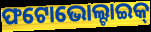
ଫଟୋଭୋଲ୍ଟାଇକ୍